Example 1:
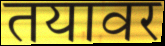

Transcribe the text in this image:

तयावर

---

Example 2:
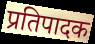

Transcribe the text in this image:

प्रतिपादक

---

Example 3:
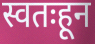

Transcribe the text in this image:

स्वतःहून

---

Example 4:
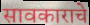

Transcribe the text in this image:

सावकाराचे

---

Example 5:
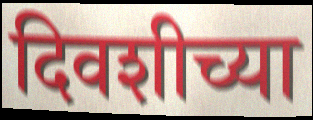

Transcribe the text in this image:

दिवशीच्या